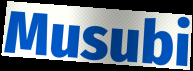
Musubi